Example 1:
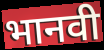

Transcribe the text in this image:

भानवी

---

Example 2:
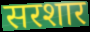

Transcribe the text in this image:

सरशार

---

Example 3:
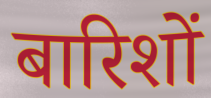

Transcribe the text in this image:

बारिशों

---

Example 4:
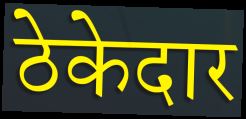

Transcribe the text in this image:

ठेकेदार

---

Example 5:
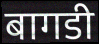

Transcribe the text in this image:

बागडी